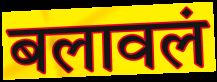
बलावलं